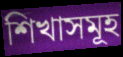
শিখাসমূহ